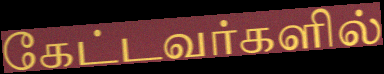
கேட்டவர்களில்